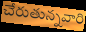
చేరుతున్నవారి